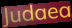
Judaea